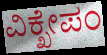
ವಿಕ್ಖೇಪಂ